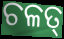
ଚଳତ୍